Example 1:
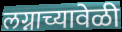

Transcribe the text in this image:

लग्नाच्यावेळी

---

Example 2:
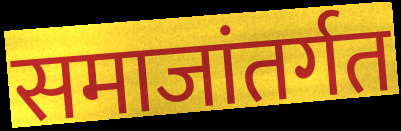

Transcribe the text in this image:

समाजांतर्गत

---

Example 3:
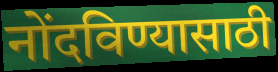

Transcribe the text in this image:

नोंदविण्यासाठी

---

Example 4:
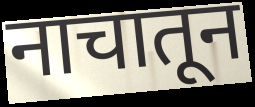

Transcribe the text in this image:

नाचातून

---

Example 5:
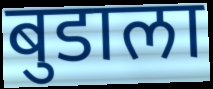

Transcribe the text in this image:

बुडाला